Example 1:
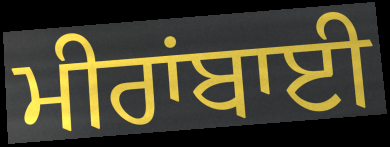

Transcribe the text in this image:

ਮੀਰਾਂਬਾਈ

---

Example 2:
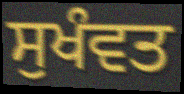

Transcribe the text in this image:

ਸੁਖੰਵਤ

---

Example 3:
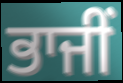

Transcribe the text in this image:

ਭਾਜੀਂ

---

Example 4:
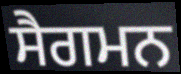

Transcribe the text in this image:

ਸੈਗਮਨ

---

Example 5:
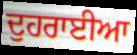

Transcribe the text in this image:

ਦੁਹਰਾਈਆ